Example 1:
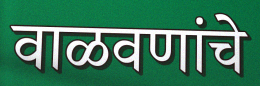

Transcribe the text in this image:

वाळवणांचे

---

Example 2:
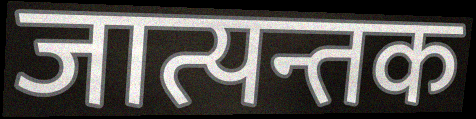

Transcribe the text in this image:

जात्यन्तक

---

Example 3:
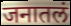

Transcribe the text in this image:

जनातलं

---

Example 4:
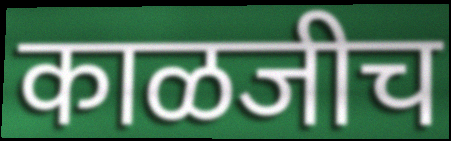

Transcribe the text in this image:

काळजीच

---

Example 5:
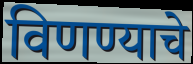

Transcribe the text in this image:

विणण्याचे